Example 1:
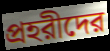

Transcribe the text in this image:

প্রহরীদের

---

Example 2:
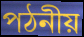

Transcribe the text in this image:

পঠনীয়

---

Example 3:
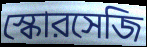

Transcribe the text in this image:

স্কোরসেজি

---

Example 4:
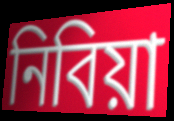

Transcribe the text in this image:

নিবিয়া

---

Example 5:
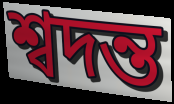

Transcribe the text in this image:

শ্বদন্ত